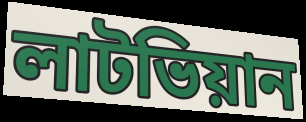
লাটভিয়ান